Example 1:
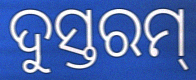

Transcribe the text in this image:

ଦୁସ୍ତରମ୍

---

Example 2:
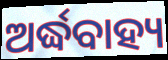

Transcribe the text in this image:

ଅର୍ଦ୍ଧବାହ୍ୟ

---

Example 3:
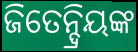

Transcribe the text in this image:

ଜିତେନ୍ଦ୍ରିୟଙ୍କ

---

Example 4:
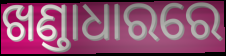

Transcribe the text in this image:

ଖଣ୍ଡାଧାରରେ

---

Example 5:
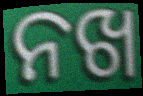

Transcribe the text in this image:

ନଖ